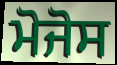
ਮੋਜੋਸ